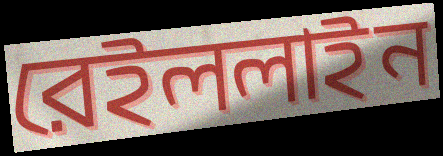
রেইললাইন